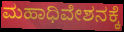
ಮಹಾಧಿವೇಶನಕ್ಕೆ